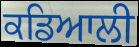
ਕਡਿਆਲੀ